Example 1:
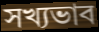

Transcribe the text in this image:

সখ্যভাব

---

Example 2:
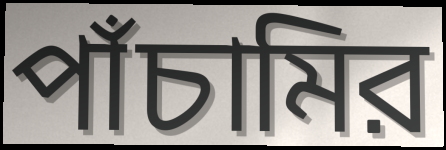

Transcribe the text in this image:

পাঁচামির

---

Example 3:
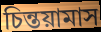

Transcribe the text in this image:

চিন্তয়ামাস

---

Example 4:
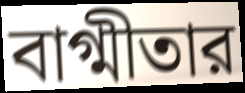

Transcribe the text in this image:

বাগ্মীতার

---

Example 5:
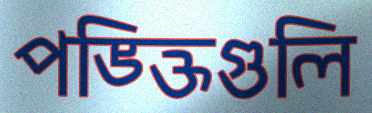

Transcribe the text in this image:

পঙ্ক্তিগুলি